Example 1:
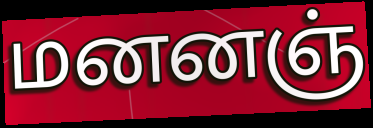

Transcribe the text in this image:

மனனஞ்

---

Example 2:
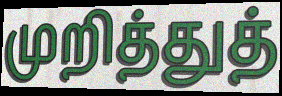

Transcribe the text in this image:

முறித்துத்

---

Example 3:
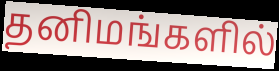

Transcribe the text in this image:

தனிமங்களில்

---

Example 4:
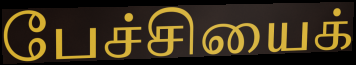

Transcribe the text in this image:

பேச்சியைக்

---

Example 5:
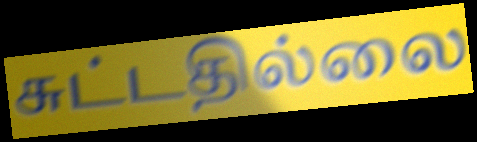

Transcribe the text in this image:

சுட்டதில்லை